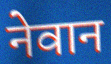
नेवान